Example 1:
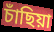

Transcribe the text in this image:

চাঁছিয়া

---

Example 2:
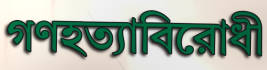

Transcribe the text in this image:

গণহত্যাবিরোধী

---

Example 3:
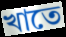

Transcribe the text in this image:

খাতে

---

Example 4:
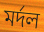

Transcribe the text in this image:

মর্দল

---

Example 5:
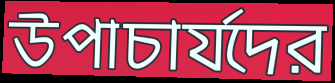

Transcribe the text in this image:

উপাচার্যদের